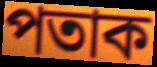
পতাক